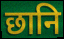
छानि